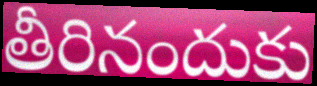
తీరినందుకు